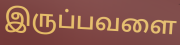
இருப்பவளை